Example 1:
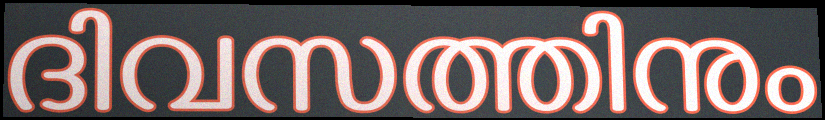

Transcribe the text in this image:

ദിവസത്തിനും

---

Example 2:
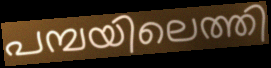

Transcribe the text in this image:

പമ്പയിലെത്തി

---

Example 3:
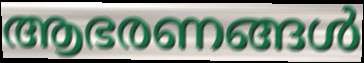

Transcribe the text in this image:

ആഭരണങ്ങൾ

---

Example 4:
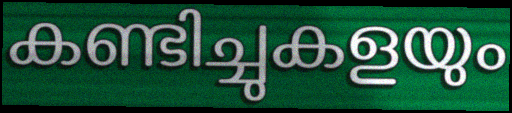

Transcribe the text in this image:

കണ്ടിച്ചുകളയും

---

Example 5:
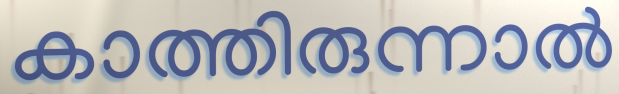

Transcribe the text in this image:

കാത്തിരുന്നാൽ